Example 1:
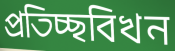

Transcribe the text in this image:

প্ৰতিচ্ছবিখন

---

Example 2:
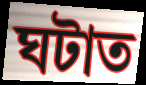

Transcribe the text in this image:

ঘটাত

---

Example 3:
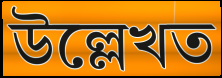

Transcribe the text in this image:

উল্লেখত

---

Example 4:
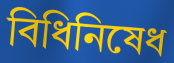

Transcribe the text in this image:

বিধিনিষেধ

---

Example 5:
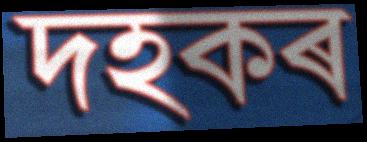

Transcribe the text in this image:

দহকৰ